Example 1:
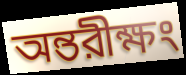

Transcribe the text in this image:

অন্তরীক্ষং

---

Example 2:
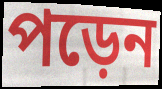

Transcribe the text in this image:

পড়েন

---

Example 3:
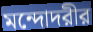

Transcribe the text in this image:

মন্দোদরীর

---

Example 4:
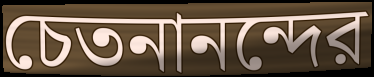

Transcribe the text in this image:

চেতনানন্দের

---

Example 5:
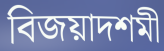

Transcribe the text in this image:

বিজয়াদশমী